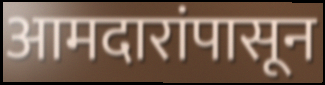
आमदारांपासून